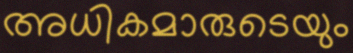
അധികമാരുടെയും